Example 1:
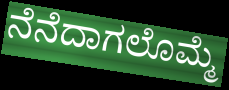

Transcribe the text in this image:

ನೆನೆದಾಗಲೊಮ್ಮೆ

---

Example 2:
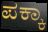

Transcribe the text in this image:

ಪಕ್ಕಾ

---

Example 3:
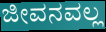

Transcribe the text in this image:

ಜೀವನವಲ್ಲ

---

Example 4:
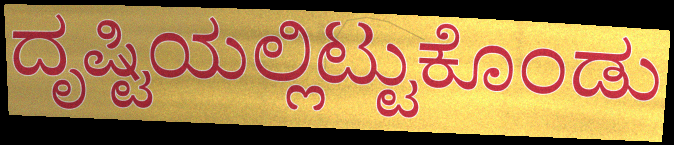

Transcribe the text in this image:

ದೃಷ್ಟಿಯಲ್ಲಿಟ್ಟುಕೊಂಡು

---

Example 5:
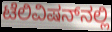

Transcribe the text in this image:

ಟೆಲಿವಿಷನ್‌ನಲ್ಲಿ